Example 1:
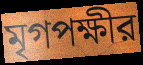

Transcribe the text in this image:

মৃগপক্ষীর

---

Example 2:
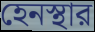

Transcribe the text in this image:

হেনস্থার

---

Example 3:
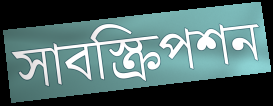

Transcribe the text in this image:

সাবস্ক্রিপশন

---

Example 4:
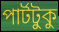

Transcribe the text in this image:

পার্টটুকু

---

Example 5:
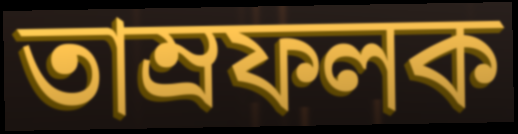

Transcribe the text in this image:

তাম্রফলক